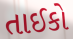
તાઈકો